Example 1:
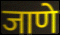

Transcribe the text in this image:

जाणे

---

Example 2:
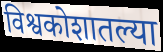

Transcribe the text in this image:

विश्वकोशातल्या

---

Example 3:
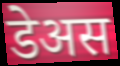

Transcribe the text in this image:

डेअस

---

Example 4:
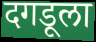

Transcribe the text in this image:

दगडूला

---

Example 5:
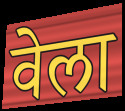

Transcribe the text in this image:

वेला